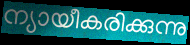
ന്യായീകരിക്കുന്നു